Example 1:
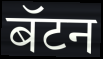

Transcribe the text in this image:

बॅटन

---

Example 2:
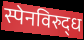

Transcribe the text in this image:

स्पेनविरुद्ध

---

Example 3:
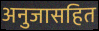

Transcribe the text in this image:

अनुजासहित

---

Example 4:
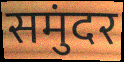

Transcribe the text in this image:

समुंदर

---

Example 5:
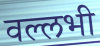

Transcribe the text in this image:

वल्लभी